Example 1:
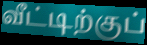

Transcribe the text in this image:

வீட்டிற்குப்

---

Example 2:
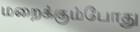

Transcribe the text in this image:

மறைக்கும்போது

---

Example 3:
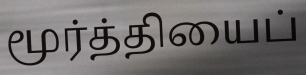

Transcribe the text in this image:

மூர்த்தியைப்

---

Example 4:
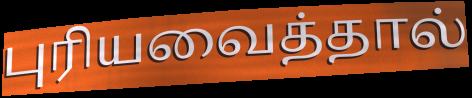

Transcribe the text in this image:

புரியவைத்தால்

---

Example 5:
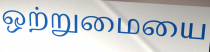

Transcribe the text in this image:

ஒற்றுமையை